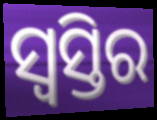
ସ୍ୱସ୍ତିର